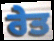
ਰੇਤ